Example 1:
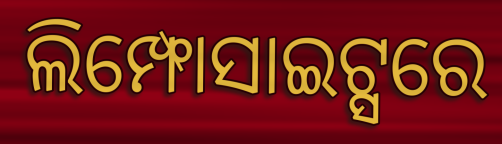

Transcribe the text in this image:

ଲିମ୍ଫୋସାଇଟ୍ସରେ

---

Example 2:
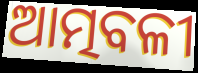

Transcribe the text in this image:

ଆତ୍ମବଳୀ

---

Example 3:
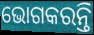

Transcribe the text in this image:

ଭୋଗକରନ୍ତି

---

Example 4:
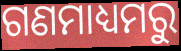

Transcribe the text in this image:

ଗଣମାଧ୍ୟମରୁ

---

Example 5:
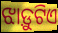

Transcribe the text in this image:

ଝାଡ଼ୁଟିଏ